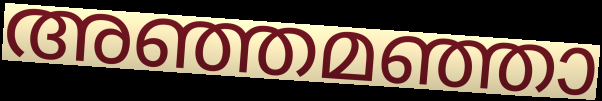
അഞ്ഞമഞ്ഞാ